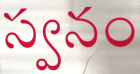
స్వనం